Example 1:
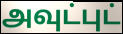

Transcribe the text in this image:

அவுட்புட்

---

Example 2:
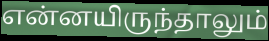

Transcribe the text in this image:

என்னயிருந்தாலும்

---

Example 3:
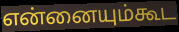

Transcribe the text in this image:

என்னையும்கூட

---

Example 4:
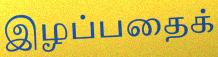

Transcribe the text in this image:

இழப்பதைக்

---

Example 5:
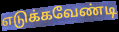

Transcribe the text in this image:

எடுக்கவேண்டி